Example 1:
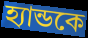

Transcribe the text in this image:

হ্যান্ডকে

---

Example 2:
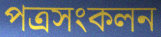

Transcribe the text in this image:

পত্রসংকলন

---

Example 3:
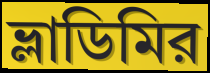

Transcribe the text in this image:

ভ্লাডিমির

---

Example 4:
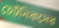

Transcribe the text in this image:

চেটনিকদের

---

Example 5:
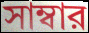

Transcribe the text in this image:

সাম্বার